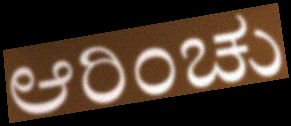
ಆರಿಂಚು